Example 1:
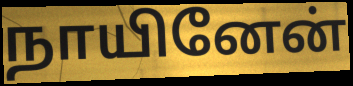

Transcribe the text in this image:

நாயினேன்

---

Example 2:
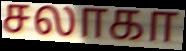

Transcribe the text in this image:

சலாகா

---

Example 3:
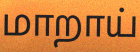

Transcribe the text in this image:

மாறாய்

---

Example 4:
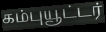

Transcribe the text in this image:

கம்புயூட்டர்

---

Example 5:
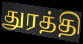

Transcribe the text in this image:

துரத்தி